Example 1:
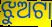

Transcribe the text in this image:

ଝୁଅଟା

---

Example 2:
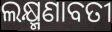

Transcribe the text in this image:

ଲକ୍ଷ୍ମଣାବତୀ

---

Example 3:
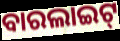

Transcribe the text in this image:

ବାରଲାଇଟ୍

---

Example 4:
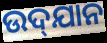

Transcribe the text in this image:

ଉଦ୍‌ଯାନ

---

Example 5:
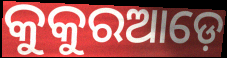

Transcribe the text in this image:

କୁକୁରଆଡ଼େ